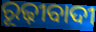
ରୂଢ଼ୀବାଦୀ